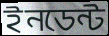
ইনডেন্ট